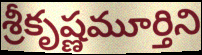
శ్రీకృష్ణమూర్తిని